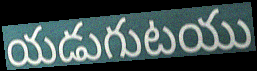
యడుగుటయు